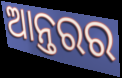
ଆନ୍ତରର